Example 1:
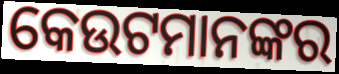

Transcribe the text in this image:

କେଉଟମାନଙ୍କର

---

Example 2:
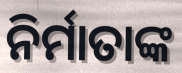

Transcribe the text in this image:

ନିର୍ମାତାଙ୍କ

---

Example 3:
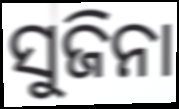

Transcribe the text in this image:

ସୁଜିନା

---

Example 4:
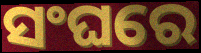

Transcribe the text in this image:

ସଂଘରେ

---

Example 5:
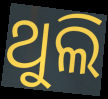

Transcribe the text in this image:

ଥୁଲି